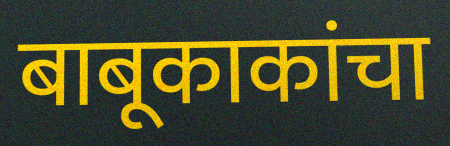
बाबूकाकांचा